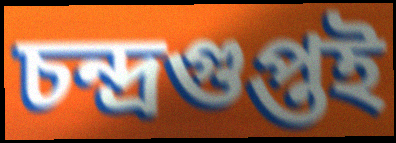
চন্দ্ৰগুপ্তই